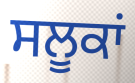
ਸਲੂਕਾਂ